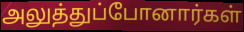
அலுத்துப்போனார்கள்